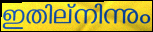
ഇതില്നിന്നും